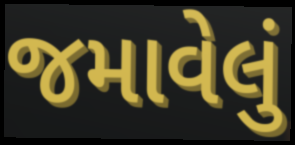
જમાવેલું